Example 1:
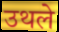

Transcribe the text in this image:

उथले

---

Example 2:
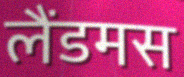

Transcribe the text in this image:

लैंडमस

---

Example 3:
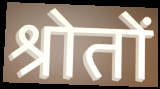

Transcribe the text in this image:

श्रोतों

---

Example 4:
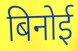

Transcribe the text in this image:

बिनोई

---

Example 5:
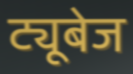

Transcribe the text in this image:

ट्यूबेज